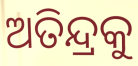
ଅତିନ୍ଦ୍ରକୁ